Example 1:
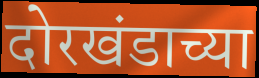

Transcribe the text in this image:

दोरखंडाच्या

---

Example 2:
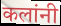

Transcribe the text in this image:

कलांनी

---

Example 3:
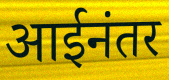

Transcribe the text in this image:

आईनंतर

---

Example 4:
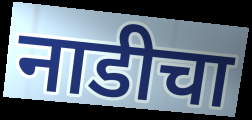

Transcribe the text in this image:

नाडीचा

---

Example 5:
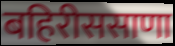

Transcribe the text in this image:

बहिरीससाणा